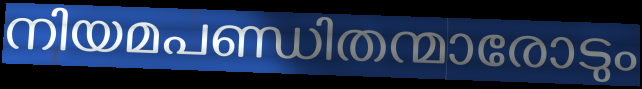
നിയമപണ്ഡിതന്മാരോടും